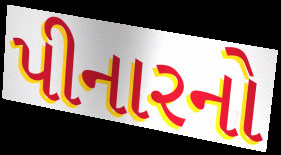
પીનારનો